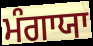
ਮੰਗਾਯਾ